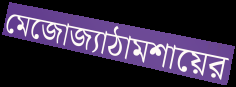
মেজোজ্যাঠামশায়ের